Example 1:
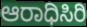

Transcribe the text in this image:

ಆರಾಧಿಸಿರಿ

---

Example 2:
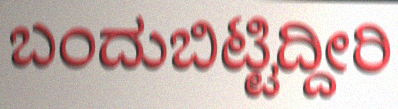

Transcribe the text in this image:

ಬಂದುಬಿಟ್ಟಿದ್ದೀರಿ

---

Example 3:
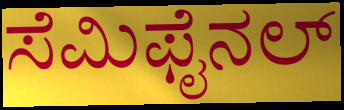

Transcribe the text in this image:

ಸೆಮಿಫೈನಲ್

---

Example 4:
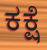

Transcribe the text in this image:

ಕಕ್ಷೆ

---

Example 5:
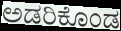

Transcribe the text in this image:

ಅಡರಿಕೊಂಡ